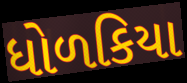
ધોળકિયા